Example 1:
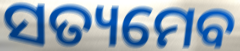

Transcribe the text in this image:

ସତ୍ୟମେବ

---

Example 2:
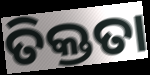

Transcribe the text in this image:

ତିକ୍ତତା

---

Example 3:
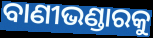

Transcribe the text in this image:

ବାଣୀଭଣ୍ଡାରକୁ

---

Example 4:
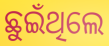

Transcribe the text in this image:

ଛୁଇଁଥିଲେ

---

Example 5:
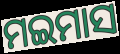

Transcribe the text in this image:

ମଇମାସ